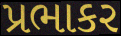
પ્રભાકર